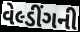
વેલ્ડીંગની